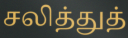
சலித்துத்